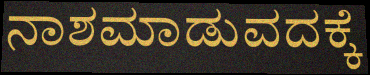
ನಾಶಮಾಡುವದಕ್ಕೆ